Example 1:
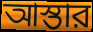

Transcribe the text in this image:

আস্তার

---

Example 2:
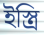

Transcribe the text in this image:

ইস্ত্রি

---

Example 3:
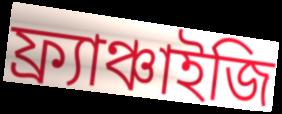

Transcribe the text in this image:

ফ্র্যাঞ্চাইজি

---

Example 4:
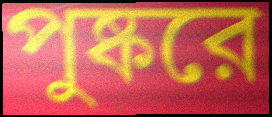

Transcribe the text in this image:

পুষ্করে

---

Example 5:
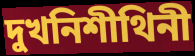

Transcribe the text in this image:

দুখনিশীথিনী